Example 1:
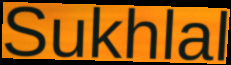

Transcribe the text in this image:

Sukhlal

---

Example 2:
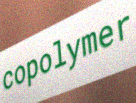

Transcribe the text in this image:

copolymer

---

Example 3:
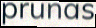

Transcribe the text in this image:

prunas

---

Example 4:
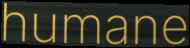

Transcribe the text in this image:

humane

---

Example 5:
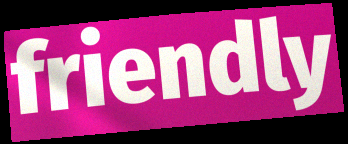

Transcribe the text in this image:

friendly